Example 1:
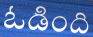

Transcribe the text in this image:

ఓడింది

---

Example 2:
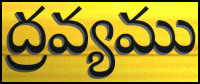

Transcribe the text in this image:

ద్రవ్యము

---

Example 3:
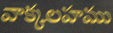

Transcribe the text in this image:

వాక్కలహము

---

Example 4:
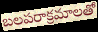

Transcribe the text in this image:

బలపరాక్రమాలతో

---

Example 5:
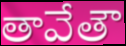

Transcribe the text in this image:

తావేతౌ